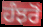
ਹੰਝਰੋਂ